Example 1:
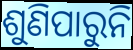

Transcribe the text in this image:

ଶୁଣିପାରୁନି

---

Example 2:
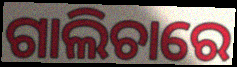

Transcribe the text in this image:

ଗାଲିଚାରେ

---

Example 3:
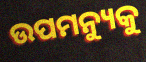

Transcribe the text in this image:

ଉପମନ୍ୟୁକୁ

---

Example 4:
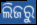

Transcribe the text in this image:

ଲିଜରୁ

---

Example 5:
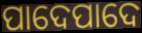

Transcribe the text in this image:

ପାଦେପାଦେ